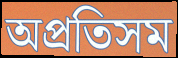
অপ্রতিসম